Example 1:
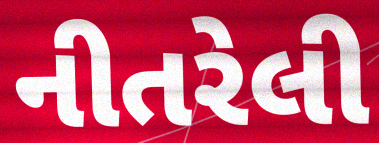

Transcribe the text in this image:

નીતરેલી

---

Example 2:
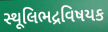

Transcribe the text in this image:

સ્થૂલિભદ્રવિષયક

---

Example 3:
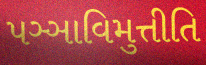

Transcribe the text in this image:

પઞ્ઞાવિમુત્તીતિ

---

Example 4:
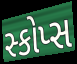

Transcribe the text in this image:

સ્કોપ્સ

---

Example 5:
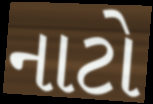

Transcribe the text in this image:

નાટો